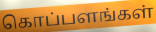
கொப்பளங்கள்